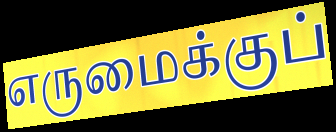
எருமைக்குப்